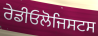
ਰੇਡੀਓਲੋਜਿਸਟਸ